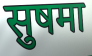
सुषमा